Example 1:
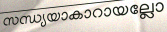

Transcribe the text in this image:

സന്ധ്യയാകാറായല്ലോ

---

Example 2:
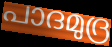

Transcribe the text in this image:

പാദമുദ്ര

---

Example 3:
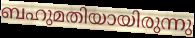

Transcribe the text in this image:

ബഹുമതിയായിരുന്നു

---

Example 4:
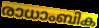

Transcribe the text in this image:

രാധാംബിക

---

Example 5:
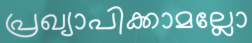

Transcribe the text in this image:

പ്രഖ്യാപിക്കാമല്ലോ